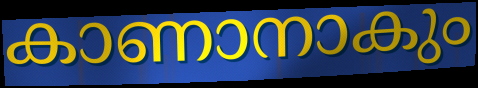
കാണാനാകും